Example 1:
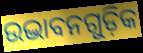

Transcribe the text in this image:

ଉଦ୍ଭାବନଗୁଡ଼ିକ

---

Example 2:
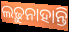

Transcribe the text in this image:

ଲଢ଼ୁନାହାନ୍ତି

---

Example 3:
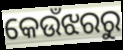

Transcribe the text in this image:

କେଉଁଝରରୁ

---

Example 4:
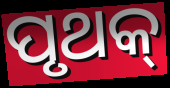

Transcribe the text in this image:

ପୃଥକ୍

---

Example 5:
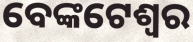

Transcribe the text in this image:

ବେଙ୍କଟେଶ୍ୱର